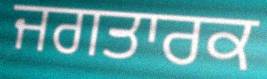
ਜਗਤਾਰਕ